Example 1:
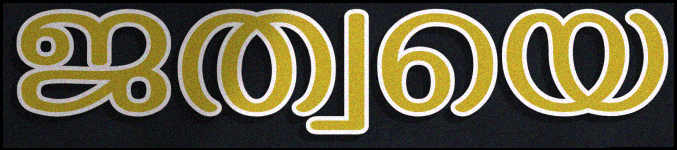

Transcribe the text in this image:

ജത്വയെ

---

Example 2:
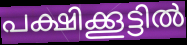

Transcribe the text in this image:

പക്ഷിക്കൂട്ടിൽ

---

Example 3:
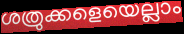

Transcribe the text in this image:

ശത്രുക്കളെയെല്ലാം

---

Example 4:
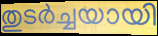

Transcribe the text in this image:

തുടർച്ചയായി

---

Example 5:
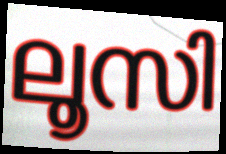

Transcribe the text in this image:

ലൂസി